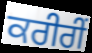
ਕਰੀਰੀਂ